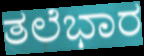
ತಲೆಭಾರ